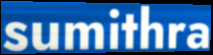
sumithra